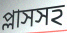
প্লাসসহ